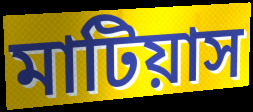
মাটিয়াস